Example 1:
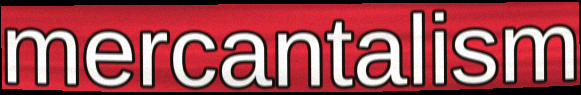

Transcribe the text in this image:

mercantalism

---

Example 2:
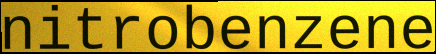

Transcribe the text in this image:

nitrobenzene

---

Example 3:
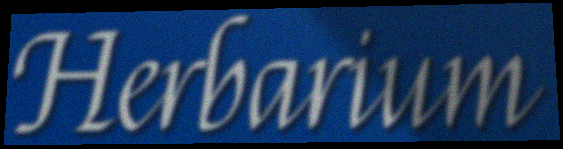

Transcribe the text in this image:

Herbarium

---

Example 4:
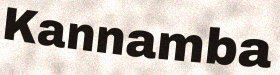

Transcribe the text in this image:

Kannamba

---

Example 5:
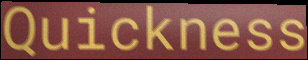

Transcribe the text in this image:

Quickness